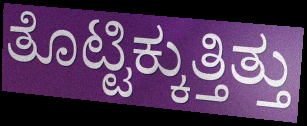
ತೊಟ್ಟಿಕ್ಕುತ್ತಿತ್ತು